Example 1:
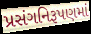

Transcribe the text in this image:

પ્રસંગનિરૂપણમાં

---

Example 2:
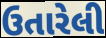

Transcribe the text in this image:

ઉતારેલી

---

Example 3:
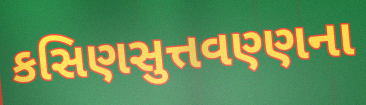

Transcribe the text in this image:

કસિણસુત્તવણ્ણના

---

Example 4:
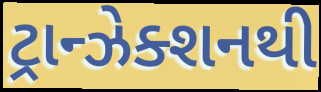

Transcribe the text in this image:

ટ્રાન્ઝેક્શનથી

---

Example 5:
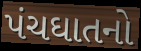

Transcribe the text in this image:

પંચઘાતનો